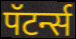
पॅटर्न्स